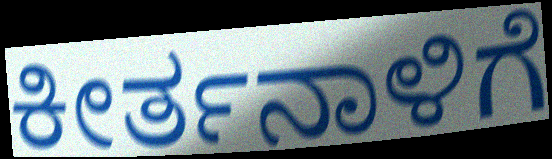
ಕೀರ್ತನಾಳಿಗೆ